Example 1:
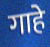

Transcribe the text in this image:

गाहे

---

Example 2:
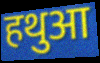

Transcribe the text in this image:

हथुआ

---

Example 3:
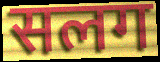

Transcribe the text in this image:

सलग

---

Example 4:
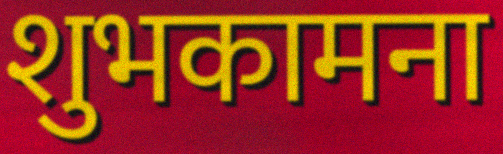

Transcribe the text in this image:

शुभकामना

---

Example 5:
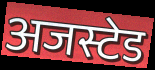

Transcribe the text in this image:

अजस्टेड